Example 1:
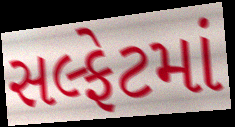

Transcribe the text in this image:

સલ્ફેટમાં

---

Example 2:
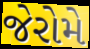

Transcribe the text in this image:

જેરોમે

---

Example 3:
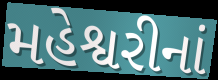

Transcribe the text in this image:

મહેશ્વરીનાં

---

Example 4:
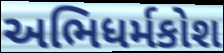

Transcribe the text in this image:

અભિધર્મકોશ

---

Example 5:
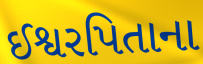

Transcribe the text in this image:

ઈશ્વરપિતાના